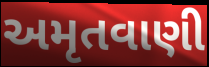
અમૃતવાણી